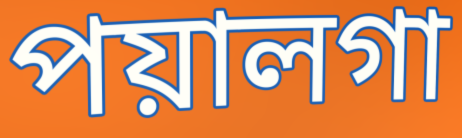
পয়ালগা